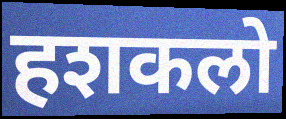
हशकलो